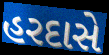
હરદાસે